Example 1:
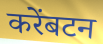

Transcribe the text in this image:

करेंबटन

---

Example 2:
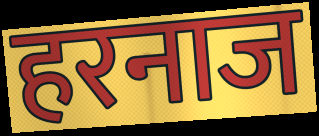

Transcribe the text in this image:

हरनाज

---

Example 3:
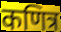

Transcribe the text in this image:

कणित्र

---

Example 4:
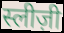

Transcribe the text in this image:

स्लीज़ी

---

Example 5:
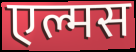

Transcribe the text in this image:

एल्मस